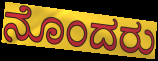
ನೊಂದರು